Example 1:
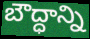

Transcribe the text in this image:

బౌద్ధాన్ని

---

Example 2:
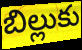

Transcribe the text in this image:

బిల్లుకు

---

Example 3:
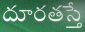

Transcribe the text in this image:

దూరతస్తే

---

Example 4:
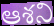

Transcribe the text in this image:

ఆశని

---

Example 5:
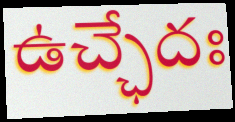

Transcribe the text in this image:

ఉచ్ఛేదః